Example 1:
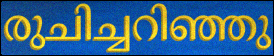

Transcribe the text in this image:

രുചിച്ചറിഞ്ഞു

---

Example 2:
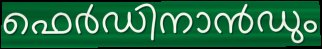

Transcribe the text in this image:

ഫെർഡിനാൻഡും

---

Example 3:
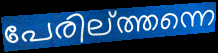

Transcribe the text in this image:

പേരില്ത്തന്നെ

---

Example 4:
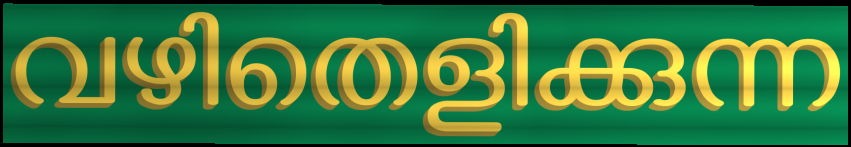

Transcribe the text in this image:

വഴിതെളിക്കുന്ന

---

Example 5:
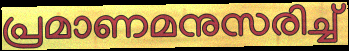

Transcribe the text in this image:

പ്രമാണമനുസരിച്ച്